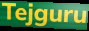
Tejguru